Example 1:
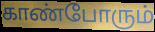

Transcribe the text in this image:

காண்போரும்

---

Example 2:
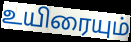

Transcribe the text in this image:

உயிரையும்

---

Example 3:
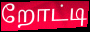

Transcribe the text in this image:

றோட்டி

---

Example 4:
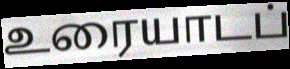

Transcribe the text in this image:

உரையாடப்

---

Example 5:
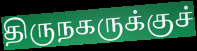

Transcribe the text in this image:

திருநகருக்குச்